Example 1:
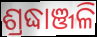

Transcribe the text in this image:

ଶ୍ରଦ୍ଧାଞ୍ଜଳି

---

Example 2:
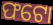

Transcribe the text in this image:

ଫଟୋ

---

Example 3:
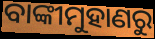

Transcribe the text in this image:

ବାଙ୍କୀମୁହାଣରୁ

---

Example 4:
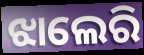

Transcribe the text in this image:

ଝାଲେରି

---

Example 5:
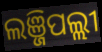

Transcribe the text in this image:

ଲଞ୍ଜିପଲ୍ଲୀ